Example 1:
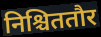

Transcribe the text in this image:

निश्चिततौर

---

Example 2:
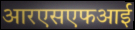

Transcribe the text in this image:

आरएसएफआई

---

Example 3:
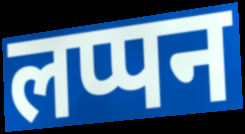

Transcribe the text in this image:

लप्पन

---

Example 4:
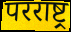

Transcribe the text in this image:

परराष्ट्र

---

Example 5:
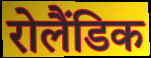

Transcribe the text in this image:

रोलैंडिक